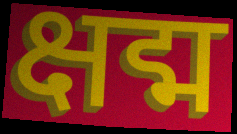
क्षद्म